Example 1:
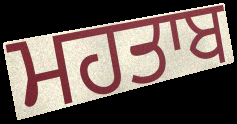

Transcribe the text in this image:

ਮਹਤਾਬ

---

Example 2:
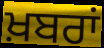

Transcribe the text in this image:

ਖ਼ਬਰਾਂ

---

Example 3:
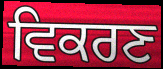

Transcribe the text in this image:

ਵਿਕਰਣ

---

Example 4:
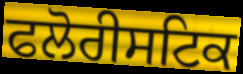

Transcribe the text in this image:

ਫਲੋਰੀਸਟਿਕ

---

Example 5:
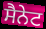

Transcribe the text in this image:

ਸੈਨੇਟ